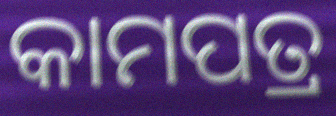
କାମପତ୍ର